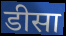
डीसा